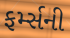
ફર્મ્સની